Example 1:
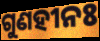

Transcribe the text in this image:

ଗୁଣହୀନଃ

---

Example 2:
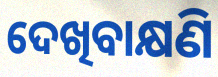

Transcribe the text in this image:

ଦେଖିବାକ୍ଷଣି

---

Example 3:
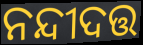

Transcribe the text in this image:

ନନ୍ଦୀଦତ୍ତ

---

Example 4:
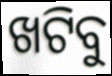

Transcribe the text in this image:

ଖଟିବୁ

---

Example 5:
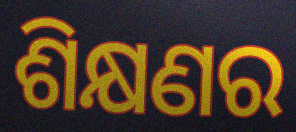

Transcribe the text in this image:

ଶିକ୍ଷଣର